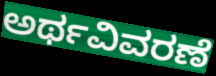
ಅರ್ಥವಿವರಣೆ